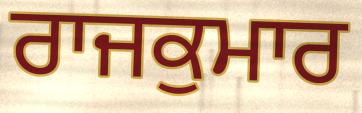
ਰਾਜਕੁਮਾਰ